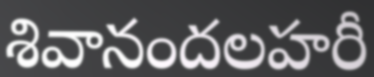
శివానందలహరీ